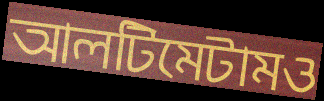
আলটিমেটামও